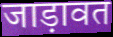
जाड़ावत